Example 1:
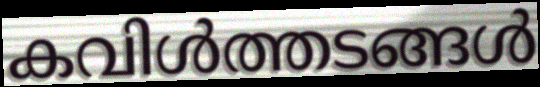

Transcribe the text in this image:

കവിൾത്തടങ്ങൾ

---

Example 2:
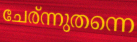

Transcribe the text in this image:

ചേര്ന്നുതന്നെ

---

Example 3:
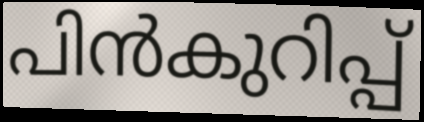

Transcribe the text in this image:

പിൻകുറിപ്പ്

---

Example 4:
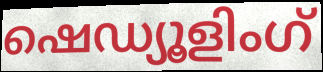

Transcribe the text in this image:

ഷെഡ്യൂളിംഗ്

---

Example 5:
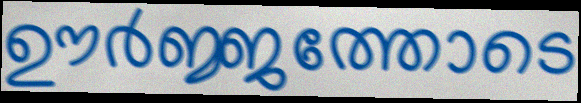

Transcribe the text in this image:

ഊർജ്ജത്തോടെ